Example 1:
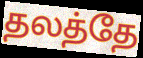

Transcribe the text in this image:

தலத்தே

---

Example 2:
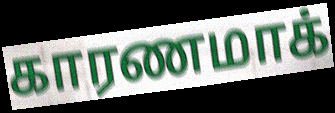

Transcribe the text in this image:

காரணமாக்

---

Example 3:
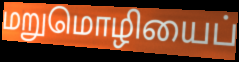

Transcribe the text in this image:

மறுமொழியைப்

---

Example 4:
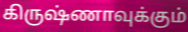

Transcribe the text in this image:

கிருஷ்ணாவுக்கும்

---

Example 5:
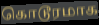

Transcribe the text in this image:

கொடூரமாக